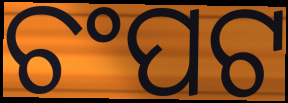
ଚଂପଟ